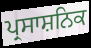
ਪ੍ਰਸਾਸ਼ਨਿਕ